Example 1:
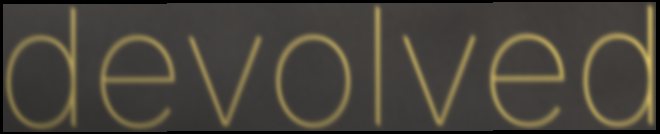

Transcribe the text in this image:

devolved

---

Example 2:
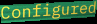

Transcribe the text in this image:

Configured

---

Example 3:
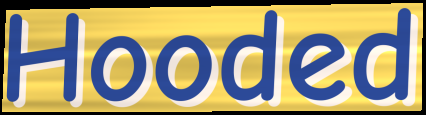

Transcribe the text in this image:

Hooded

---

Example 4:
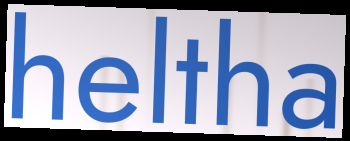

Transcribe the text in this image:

heltha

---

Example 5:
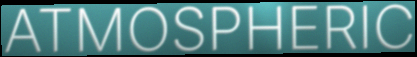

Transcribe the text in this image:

ATMOSPHERIC